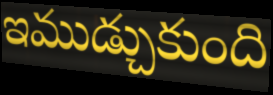
ఇముడ్చుకుంది